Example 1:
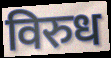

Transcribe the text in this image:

विरुध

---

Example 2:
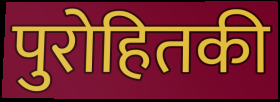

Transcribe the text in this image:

पुरोहितकी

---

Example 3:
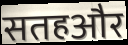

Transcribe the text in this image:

सतहऔर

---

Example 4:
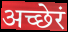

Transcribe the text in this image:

अच्छेरं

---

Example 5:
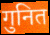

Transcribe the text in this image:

गुनित